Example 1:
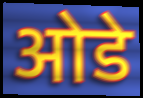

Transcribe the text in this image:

ओडे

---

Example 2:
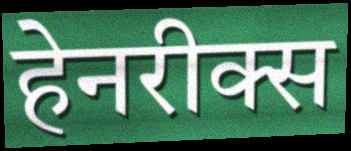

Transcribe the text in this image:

हेनरीक्स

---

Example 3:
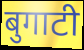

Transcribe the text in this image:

बुगाटी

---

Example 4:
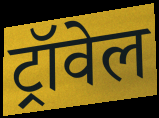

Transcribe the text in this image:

ट्रॉवेल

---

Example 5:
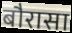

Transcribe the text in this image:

बौरासा